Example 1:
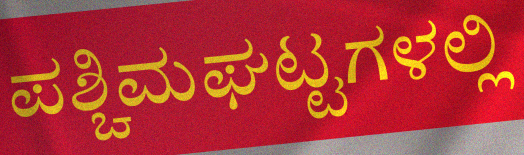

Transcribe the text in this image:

ಪಶ್ಚಿಮಘಟ್ಟಗಳಲ್ಲಿ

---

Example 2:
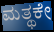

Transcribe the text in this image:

ಮತ್ಥಕೇ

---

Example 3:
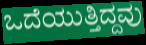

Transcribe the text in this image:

ಒದೆಯುತ್ತಿದ್ದವು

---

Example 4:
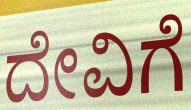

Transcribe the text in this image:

ದೇವಿಗೆ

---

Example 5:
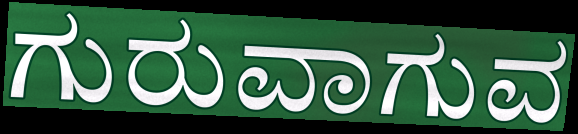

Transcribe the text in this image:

ಗುರುವಾಗುವ